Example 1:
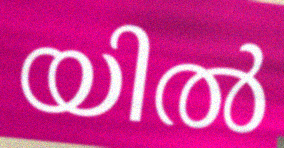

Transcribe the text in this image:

യിൽ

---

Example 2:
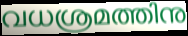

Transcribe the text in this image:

വധശ്രമത്തിനു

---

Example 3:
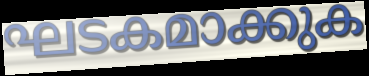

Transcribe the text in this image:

ഘടകമാക്കുക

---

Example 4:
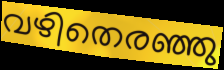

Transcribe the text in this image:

വഴിതെരഞ്ഞു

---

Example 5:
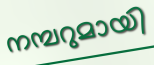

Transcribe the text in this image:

നമ്പറുമായി